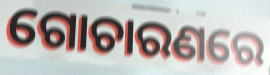
ଗୋଚାରଣରେ